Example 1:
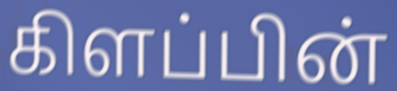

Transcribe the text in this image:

கிளப்பின்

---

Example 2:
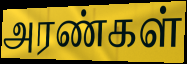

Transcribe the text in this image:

அரண்கள்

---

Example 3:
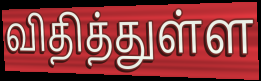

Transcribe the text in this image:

விதித்துள்ள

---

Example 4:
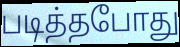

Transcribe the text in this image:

படித்தபோது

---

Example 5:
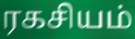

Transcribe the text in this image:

ரகசியம்